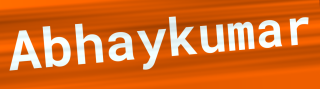
Abhaykumar